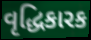
વૃદ્ધિકારક